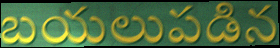
బయలుపడిన